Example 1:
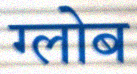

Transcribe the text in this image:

ग्‍लोब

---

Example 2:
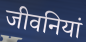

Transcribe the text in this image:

जीवनियां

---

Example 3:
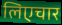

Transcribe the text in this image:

लिएचार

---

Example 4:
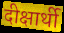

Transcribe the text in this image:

दीक्षार्थी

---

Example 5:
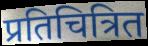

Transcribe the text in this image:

प्रतिचित्रित